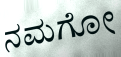
ನಮಗೋ